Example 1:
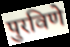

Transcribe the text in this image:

पुरविणे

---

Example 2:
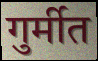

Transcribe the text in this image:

गुर्मीत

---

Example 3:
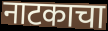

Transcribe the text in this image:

नाटकाचा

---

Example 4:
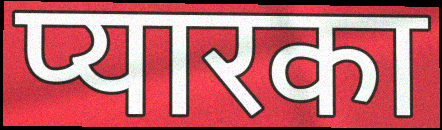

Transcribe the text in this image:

प्यारका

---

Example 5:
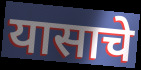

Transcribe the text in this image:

यासाचे